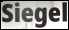
Siegel